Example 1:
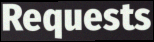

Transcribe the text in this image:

Requests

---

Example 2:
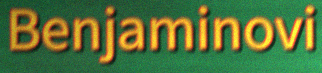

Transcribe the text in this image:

Benjaminovi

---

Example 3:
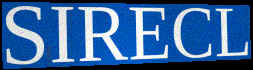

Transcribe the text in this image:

SIRECL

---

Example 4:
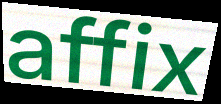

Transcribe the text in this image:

affix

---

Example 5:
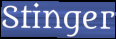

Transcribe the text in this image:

Stinger